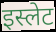
इस्लेट